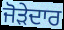
ਜੋੜੇਦਾਰ